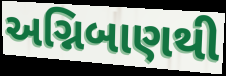
અગ્નિબાણથી